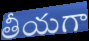
తీయగా